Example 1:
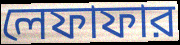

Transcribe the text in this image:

লেফাফার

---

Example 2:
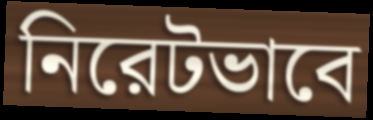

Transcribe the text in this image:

নিরেটভাবে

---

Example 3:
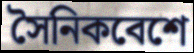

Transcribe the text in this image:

সৈনিকবেশে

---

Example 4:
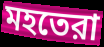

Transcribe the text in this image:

মহতেরা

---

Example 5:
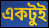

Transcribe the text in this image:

একটুই